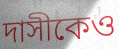
দাসীকেও